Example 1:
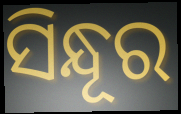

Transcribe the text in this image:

ସିନ୍ଧୂର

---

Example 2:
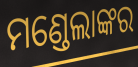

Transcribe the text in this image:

ମଣ୍ଡେଲାଙ୍କର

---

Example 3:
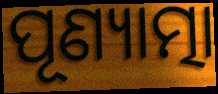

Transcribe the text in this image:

ପୂଣ୍ୟାତ୍ମା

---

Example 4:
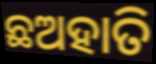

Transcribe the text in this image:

ଛଅହାତି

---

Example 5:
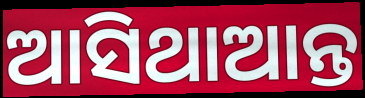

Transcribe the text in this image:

ଆସିଥାଆନ୍ତ